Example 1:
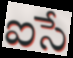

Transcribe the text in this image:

ఐసే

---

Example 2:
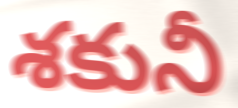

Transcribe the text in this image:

శకునీ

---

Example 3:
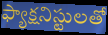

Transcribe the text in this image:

ఫ్యాక్షనిస్టులతో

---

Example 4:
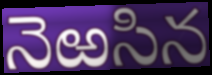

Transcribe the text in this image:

నెఱసిన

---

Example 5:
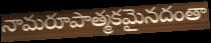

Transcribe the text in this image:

నామరూపాత్మకమైనదంతా